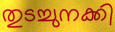
തുടച്ചുനക്കി